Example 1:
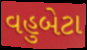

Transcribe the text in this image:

વહુબેટા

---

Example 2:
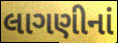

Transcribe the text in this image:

લાગણીનાં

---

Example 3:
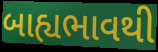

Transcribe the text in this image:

બાહ્યભાવથી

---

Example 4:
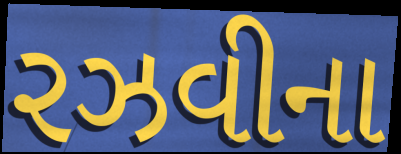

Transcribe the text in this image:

રઝવીના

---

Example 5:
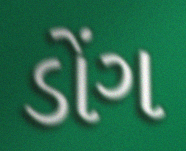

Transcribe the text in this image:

ડોંગ